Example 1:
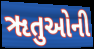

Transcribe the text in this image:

ૠતુઓની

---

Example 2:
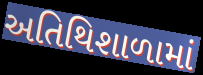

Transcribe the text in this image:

અતિથિશાળામાં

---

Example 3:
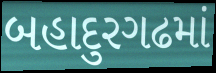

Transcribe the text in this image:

બહાદુરગઢમાં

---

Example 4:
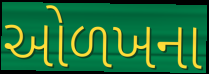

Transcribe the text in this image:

ઓળખના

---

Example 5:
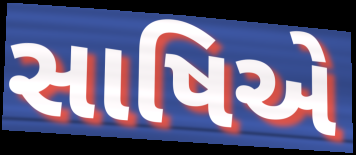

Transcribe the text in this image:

સાષિએ